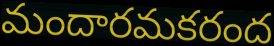
మందారమకరంద